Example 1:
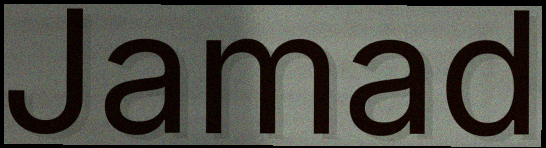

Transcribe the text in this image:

Jamad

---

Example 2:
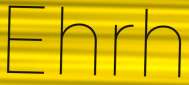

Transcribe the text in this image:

Ehrh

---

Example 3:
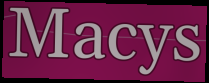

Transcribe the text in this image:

Macys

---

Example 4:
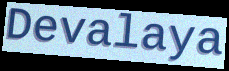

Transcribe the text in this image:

Devalaya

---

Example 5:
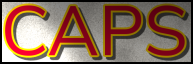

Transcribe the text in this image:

CAPS